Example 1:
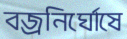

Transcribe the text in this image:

বজ্রনির্ঘোষে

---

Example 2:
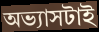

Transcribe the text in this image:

অভ্যাসটাই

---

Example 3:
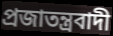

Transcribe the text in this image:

প্রজাতন্ত্রবাদী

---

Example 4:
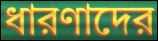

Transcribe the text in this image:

ধারণাদের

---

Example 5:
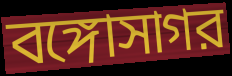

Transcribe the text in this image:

বঙ্গোসাগর